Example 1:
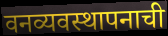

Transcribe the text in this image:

वनव्यवस्थापनाची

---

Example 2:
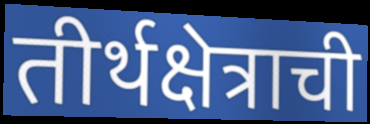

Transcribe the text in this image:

तीर्थक्षेत्राची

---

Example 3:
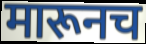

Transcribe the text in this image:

मारूनच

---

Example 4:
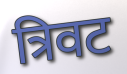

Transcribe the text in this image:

त्रिवट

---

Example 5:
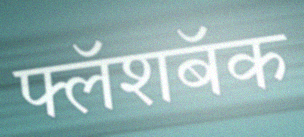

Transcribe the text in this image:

फ्लॅशबॅक